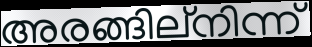
അരങ്ങില്നിന്ന്